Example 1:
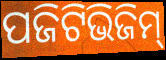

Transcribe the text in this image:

ପଜିଟିଭିଜିମ୍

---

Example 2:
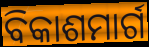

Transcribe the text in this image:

ବିକାଶମାର୍ଗ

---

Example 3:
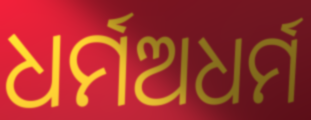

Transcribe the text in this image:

ଧର୍ମଅଧର୍ମ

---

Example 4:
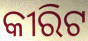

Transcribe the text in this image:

କୀରିଟ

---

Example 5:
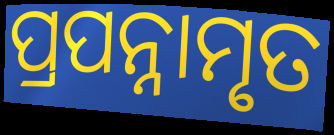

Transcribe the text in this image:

ପ୍ରପନ୍ନାମୃତ